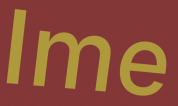
Ime